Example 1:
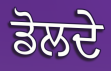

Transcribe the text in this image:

ਡੋਲਦੇ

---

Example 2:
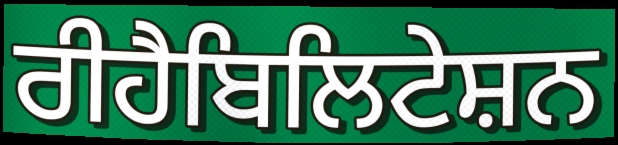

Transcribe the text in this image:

ਰੀਹੈਬਿਲਿਟੇਸ਼ਨ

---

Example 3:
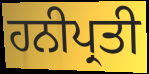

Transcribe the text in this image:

ਹਨੀਪ੍ਰਤੀ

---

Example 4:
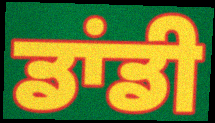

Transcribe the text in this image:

ਡਾਂਡੀ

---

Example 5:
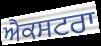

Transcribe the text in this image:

ਐਕਸਟਰਾ